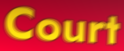
Court